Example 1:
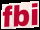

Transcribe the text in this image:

fbi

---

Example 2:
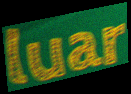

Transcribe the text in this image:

luar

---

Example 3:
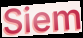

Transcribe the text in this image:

Siem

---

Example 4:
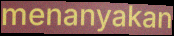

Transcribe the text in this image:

menanyakan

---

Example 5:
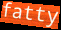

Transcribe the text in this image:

fatty